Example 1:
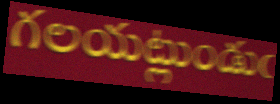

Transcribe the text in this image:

గలయట్లుండుఁ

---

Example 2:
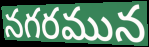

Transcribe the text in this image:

నగరమున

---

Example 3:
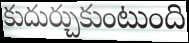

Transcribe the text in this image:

కుదుర్చుకుంటుంది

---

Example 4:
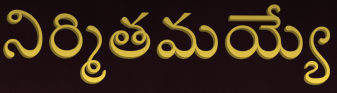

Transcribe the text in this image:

నిర్మితమయ్యే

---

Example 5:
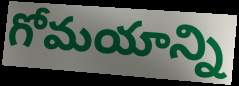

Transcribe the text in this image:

గోమయాన్ని